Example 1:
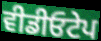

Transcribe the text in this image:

ਵੀਡੀਓਟੇਪ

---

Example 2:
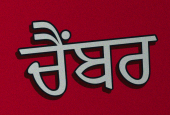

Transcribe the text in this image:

ਚੈਂਬਰ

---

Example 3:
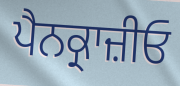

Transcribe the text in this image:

ਪੈਨਕ੍ਰਾਜ਼ੀਓ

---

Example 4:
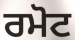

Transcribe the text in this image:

ਰਮੋਟ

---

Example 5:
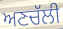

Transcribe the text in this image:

ਅਣਚੱਲੀ